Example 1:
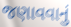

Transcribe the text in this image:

જણાવવાનું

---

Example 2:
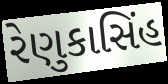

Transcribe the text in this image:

રેણુકાસિંહ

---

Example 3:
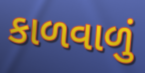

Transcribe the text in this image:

કાળવાળું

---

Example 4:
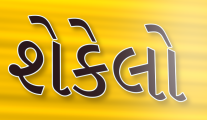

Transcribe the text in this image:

શેકેલો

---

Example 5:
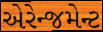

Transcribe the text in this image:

એરેન્જમેન્ટ